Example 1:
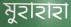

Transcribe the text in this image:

মুহাহাহা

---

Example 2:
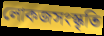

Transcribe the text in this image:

লোকজসংস্কৃতি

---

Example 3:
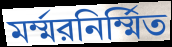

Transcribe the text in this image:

মর্ম্মরনির্ম্মিত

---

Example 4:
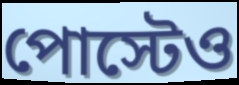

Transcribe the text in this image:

পোস্টেও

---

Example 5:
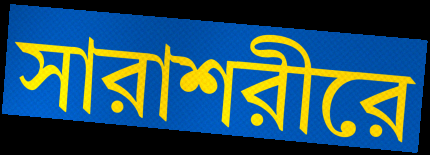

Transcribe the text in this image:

সারাশরীরে